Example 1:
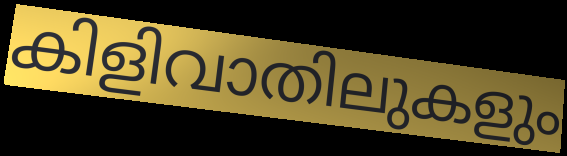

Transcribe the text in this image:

കിളിവാതിലുകളും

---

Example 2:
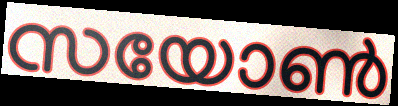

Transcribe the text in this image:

സയോൺ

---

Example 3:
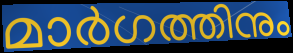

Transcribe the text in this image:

മാർഗത്തിനും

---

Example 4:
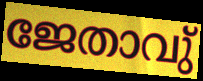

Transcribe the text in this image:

ജേതാവു്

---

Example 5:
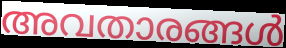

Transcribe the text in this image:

അവതാരങ്ങൾ